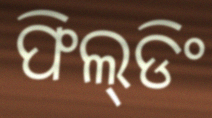
ଫିଲ୍‌ଡିଂ